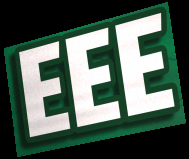
EEE